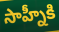
సాహ్నీకి